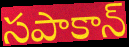
సపాకాన్